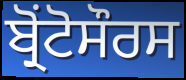
ਬ੍ਰੋਂਟੋਸੌਰਸ